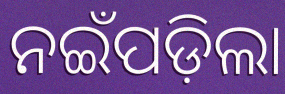
ନଇଁପଡ଼ିଲା